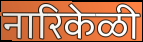
नारिकेळी